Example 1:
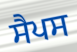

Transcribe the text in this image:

ਸੈਪਸ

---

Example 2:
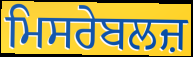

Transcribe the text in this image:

ਮਿਸਰੇਬਲਜ਼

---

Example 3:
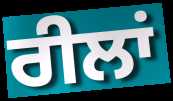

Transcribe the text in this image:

ਰੀਲਾਂ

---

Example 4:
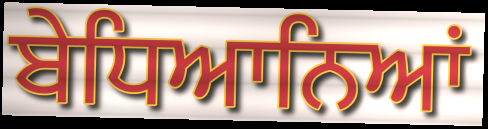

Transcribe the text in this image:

ਬੇਧਿਆਨਿਆਂ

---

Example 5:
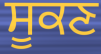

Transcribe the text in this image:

ਸੂਕਣ